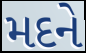
મદને